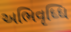
અભિવૃધ્ધિ